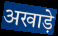
अखाड़े